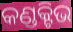
କଣ୍ଡକ୍ଟିଭ